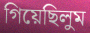
গিয়েছিলুম